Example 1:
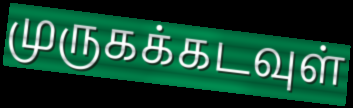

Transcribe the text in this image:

முருகக்கடவுள்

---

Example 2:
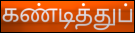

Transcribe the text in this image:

கண்டித்துப்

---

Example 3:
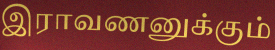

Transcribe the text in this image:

இராவணனுக்கும்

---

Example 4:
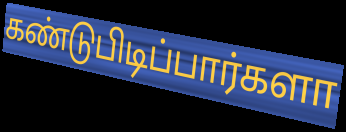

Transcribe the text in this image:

கண்டுபிடிப்பார்களா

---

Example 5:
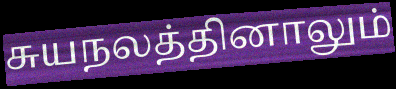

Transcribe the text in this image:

சுயநலத்தினாலும்